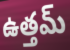
ఉత్తమ్